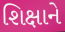
શિક્ષાને